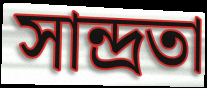
সান্দ্ৰতা